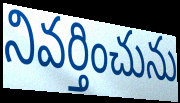
నివర్తించును